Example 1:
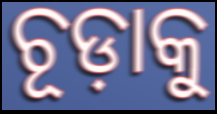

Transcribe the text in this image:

ଚୂଡ଼ାକୁ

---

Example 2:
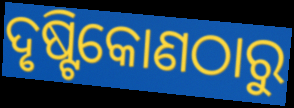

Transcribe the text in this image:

ଦୃଷ୍ଟିକୋଣଠାରୁ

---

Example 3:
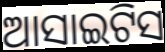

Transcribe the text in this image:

ଆସାଇଟିସ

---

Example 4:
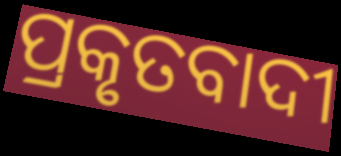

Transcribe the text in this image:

ପ୍ରକୃତବାଦୀ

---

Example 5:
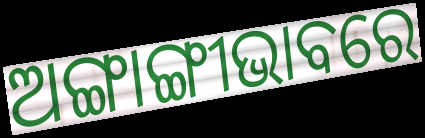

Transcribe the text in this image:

ଅଙ୍ଗାଙ୍ଗୀଭାବରେ